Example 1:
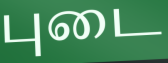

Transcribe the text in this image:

புடை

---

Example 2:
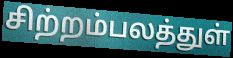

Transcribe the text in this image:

சிற்றம்பலத்துள்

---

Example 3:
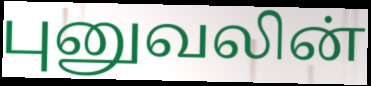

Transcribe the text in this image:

புனுவலின்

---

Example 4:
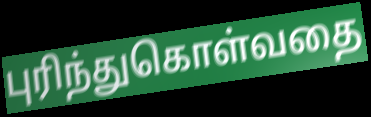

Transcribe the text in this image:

புரிந்துகொள்வதை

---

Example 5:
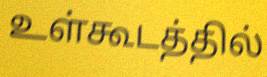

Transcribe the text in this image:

உள்கூடத்தில்